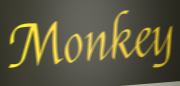
Monkey